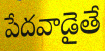
పేదవాడైతే